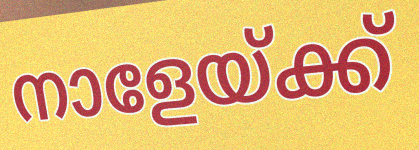
നാളേയ്ക്ക്